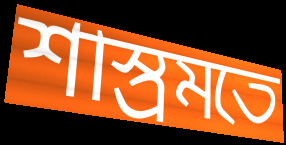
শাস্ত্ৰমতে